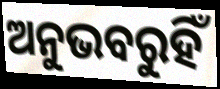
ଅନୁଭବରୁହିଁ